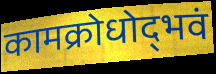
कामक्रोधोद्भवं